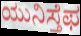
ಯುನಿಸ್ತೆಫ